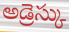
అడ్రెస్కు